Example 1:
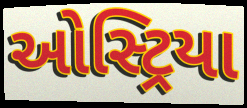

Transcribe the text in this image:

ઓસ્ટ્રિયા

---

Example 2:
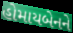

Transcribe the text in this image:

હોમાયબેનને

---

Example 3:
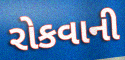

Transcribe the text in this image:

રોકવાની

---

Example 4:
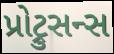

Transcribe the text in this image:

પ્રોટ્રુસન્સ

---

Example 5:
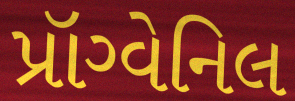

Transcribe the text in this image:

પ્રૉગ્વેનિલ